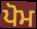
ਪੋਮ